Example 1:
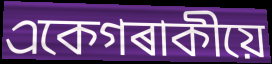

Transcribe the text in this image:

একেগৰাকীয়ে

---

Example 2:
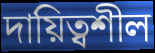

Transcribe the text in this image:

দায়িত্বশীল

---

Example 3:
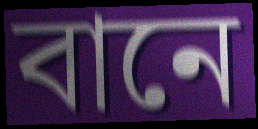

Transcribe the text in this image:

বানে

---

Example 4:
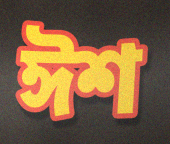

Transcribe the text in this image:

ঈশ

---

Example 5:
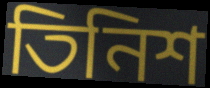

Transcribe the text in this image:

তিনিশ